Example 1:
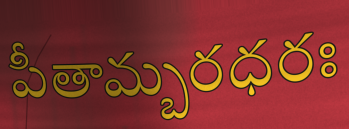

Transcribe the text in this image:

పీతామ్బరధరః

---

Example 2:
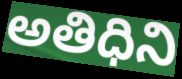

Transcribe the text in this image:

అతిధిని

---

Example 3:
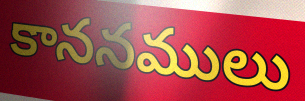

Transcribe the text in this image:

కాననములు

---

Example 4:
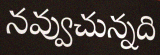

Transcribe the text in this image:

నవ్వుచున్నది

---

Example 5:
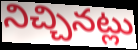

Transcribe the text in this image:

నిచ్చినట్లు